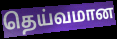
தெய்வமான